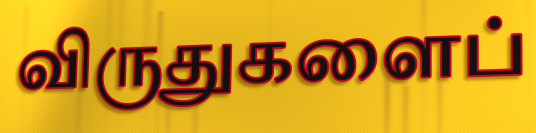
விருதுகளைப்